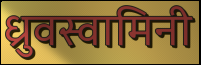
ध्रुवस्वामिनी